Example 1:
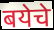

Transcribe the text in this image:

बयेचे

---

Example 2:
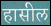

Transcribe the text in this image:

हासील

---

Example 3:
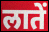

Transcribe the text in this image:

लातें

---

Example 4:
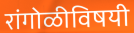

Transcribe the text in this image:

रांगोळीविषयी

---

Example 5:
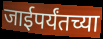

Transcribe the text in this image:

जाईपर्यंतच्या